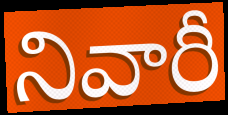
నివారీ